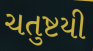
ચતુષ્ટયી